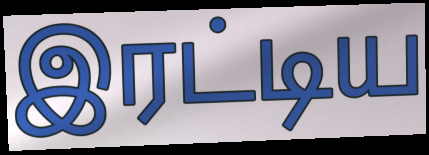
இரட்டிய